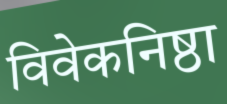
विवेकनिष्ठा